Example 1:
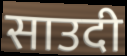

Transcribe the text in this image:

साउदी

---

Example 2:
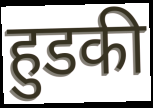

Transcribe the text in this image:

हुडकी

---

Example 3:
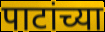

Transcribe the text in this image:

पाटांच्या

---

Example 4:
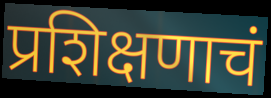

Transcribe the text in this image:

प्रशिक्षणाचं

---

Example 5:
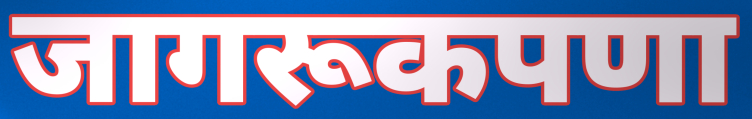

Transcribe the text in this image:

जागरूकपणा